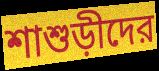
শাশুড়ীদের